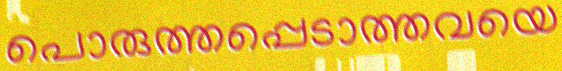
പൊരുത്തപ്പെടാത്തവയെ